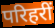
परिहरीं